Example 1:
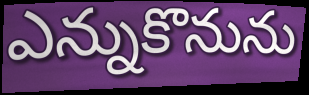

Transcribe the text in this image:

ఎన్నుకొనును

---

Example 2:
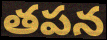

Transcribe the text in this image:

తపన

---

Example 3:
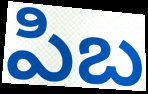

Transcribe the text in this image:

పిబ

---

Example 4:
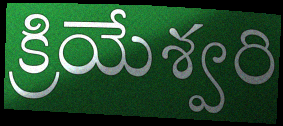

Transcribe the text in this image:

క్రియేశ్వరి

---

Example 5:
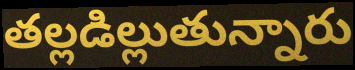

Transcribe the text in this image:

తల్లడిల్లుతున్నారు